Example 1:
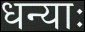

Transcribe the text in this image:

धन्याः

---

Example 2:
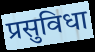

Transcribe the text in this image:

प्रसुविधा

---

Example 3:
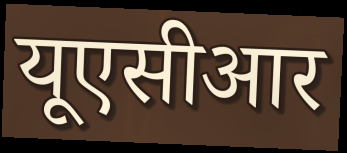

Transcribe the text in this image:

यूएसीआर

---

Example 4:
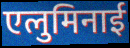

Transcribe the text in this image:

एलुमिनाई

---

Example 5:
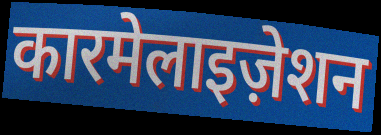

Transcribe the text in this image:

कारमेलाइज़ेशन